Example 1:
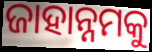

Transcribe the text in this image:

ଜାହାନ୍ନମକୁ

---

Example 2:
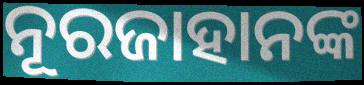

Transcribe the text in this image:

ନୂରଜାହାନଙ୍କ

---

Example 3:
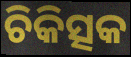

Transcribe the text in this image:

ଚିକିତ୍ସକ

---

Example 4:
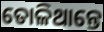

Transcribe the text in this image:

ତୋଳିଥାନ୍ତେ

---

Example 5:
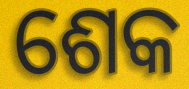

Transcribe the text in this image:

ଶେକ